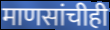
माणसांचीही